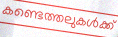
കണ്ടെത്തലുകൾക്ക്